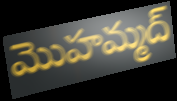
మొహమ్మద్